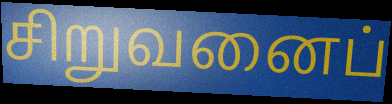
சிறுவனைப்